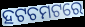
ହଟଚମଟରେ